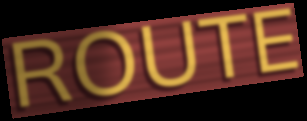
ROUTE